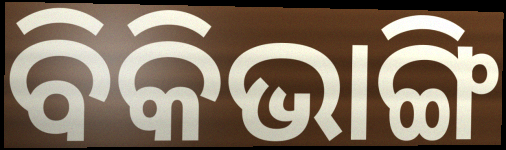
ବିକିଭାଙ୍ଗି